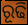
ରୂଢି